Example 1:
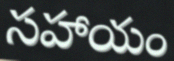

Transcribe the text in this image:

సహాయం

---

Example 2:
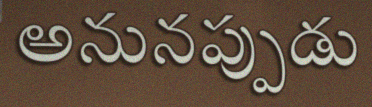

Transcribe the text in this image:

అనునప్పుడు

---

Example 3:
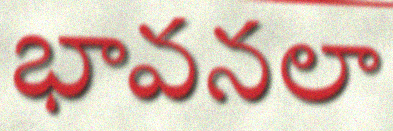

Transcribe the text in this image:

భావనలా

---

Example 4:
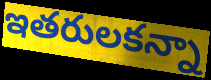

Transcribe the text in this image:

ఇతరులకన్నా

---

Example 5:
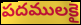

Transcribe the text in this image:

పదములకై